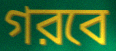
গরবে